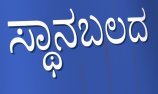
ಸ್ಥಾನಬಲದ